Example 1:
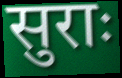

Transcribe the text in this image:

सुराः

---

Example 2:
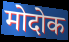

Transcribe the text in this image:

मोदोक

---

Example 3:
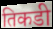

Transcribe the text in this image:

तिकडी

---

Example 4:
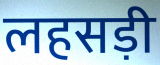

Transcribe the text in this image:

लहसड़ी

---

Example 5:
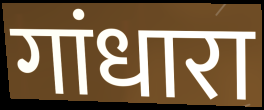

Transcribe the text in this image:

गांधारा